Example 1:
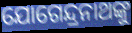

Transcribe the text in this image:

ଯୋଗେନ୍ଦ୍ରନାଥଙ୍କୁ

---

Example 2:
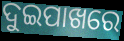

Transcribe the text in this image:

ଦୁଇପାଖରେ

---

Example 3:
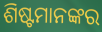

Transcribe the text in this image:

ଶିଷ୍ଟମାନଙ୍କର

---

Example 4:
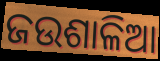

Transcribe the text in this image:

ଜଉଶାଳିଆ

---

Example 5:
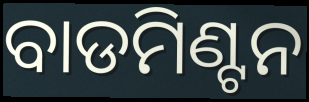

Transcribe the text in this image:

ବାଡମିଣ୍ଟନ